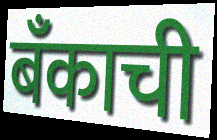
बँकाची